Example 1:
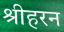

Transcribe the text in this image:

श्रीहरन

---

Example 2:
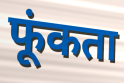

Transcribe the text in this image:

फूंकता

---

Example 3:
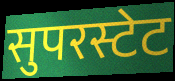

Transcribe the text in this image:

सुपरस्टेट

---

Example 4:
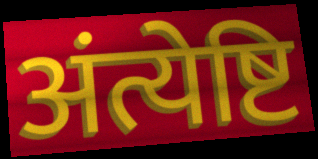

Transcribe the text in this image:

अंत्येष्टि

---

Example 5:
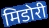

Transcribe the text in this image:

मिडोरी